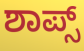
ಶಾಪ್ಸ್